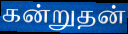
கன்றுதன்